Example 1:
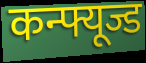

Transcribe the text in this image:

कन्फ्यूज्ड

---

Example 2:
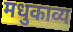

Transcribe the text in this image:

मधुकाव्य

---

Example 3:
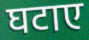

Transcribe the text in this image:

घटाए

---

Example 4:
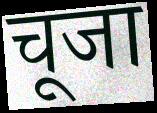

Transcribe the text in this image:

चूजा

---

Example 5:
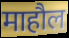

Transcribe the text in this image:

माहौल